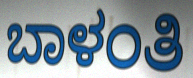
ಬಾಳಂತಿ